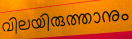
വിലയിരുത്താനും